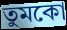
তুমকো